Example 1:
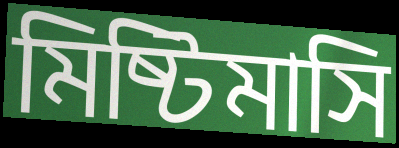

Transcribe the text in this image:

মিষ্টিমাসি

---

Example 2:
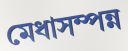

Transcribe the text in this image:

মেধাসম্পন্ন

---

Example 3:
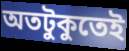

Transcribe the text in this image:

অতটুকুতেই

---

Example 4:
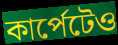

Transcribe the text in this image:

কার্পেটেও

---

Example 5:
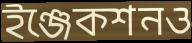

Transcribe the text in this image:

ইঞ্জেকশনও